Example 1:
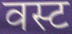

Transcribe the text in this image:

वस्ट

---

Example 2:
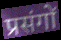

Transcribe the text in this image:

प्रसंगों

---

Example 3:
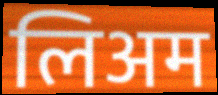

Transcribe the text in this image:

लिअम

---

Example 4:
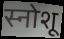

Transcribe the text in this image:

स्नोशू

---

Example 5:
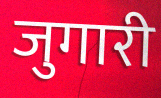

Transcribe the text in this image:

जुगारी